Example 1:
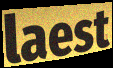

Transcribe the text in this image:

laest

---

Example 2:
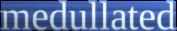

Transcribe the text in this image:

medullated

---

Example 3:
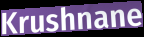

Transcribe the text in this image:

Krushnane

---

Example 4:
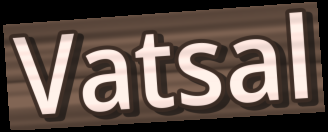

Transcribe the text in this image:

Vatsal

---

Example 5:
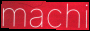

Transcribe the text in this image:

machi